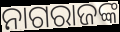
ନାଗରାଜଙ୍କ